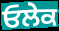
ਓਲੇਕ